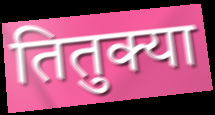
तितुक्या